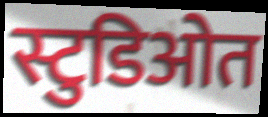
स्टुडिओत